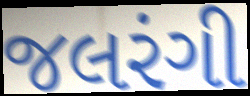
જલરંગી